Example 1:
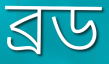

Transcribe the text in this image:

ব্ৰড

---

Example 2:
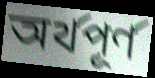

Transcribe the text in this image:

অৰ্থপূৰ্ণ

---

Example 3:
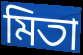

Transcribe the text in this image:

মিতা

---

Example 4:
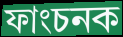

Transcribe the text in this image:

ফাংচনক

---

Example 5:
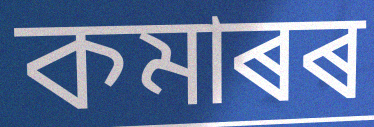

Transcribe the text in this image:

কমাৰৰ